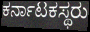
ಕರ್ನಾಟಕಸ್ಥರು